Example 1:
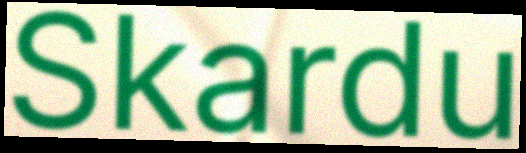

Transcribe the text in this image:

Skardu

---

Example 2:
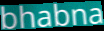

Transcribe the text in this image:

bhabna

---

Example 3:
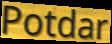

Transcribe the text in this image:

Potdar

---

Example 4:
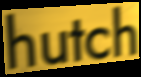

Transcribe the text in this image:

hutch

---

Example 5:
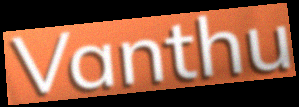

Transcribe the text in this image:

Vanthu